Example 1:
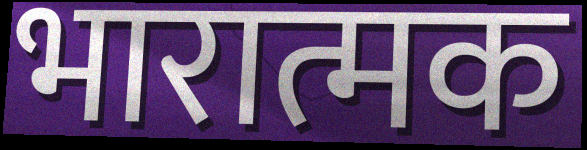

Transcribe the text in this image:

भारात्मक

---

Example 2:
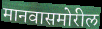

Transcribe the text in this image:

मानवासमोरील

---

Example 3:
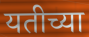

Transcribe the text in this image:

यतीच्या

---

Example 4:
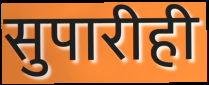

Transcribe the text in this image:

सुपारीही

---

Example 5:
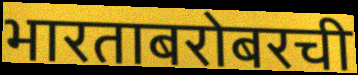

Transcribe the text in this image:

भारताबरोबरची